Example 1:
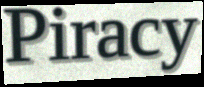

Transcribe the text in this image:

Piracy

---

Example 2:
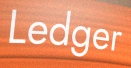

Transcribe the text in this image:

Ledger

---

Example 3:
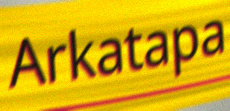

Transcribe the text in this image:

Arkatapa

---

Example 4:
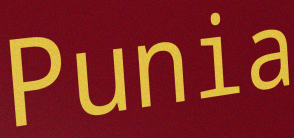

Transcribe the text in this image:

Punia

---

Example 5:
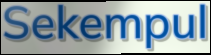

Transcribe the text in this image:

Sekempul